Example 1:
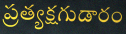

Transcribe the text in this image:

ప్రత్యక్షగుడారం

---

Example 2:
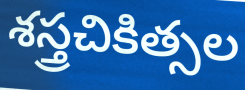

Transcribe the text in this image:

శస్త్రచికిత్సల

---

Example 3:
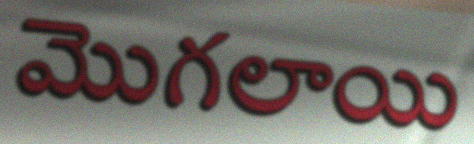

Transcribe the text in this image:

మొగలాయి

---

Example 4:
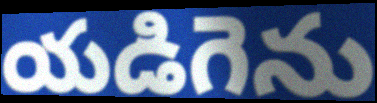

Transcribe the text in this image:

యడిగెను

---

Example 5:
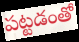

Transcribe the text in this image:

పట్టడంతో